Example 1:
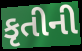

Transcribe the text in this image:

કૃતીની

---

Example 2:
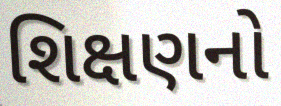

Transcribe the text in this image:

શિક્ષણનો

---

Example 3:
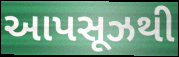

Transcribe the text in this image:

આપસૂઝથી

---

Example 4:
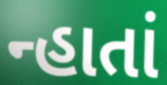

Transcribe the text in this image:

ન્હાતાં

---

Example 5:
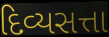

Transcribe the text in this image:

દિવ્યસત્તા